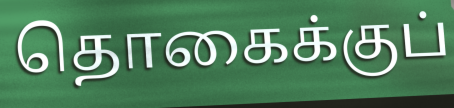
தொகைக்குப்